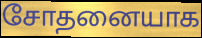
சோதனையாக